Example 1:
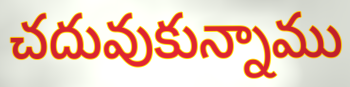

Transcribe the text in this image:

చదువుకున్నాము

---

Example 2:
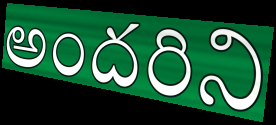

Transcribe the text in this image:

అందరిని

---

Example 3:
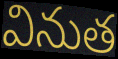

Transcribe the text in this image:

వినుత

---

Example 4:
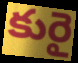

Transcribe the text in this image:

కురై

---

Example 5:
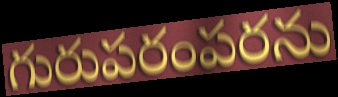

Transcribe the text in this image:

గురుపరంపరను